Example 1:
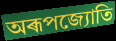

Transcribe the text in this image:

অৰূপজ্যোতি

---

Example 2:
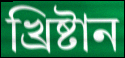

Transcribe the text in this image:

খ্ৰিষ্টান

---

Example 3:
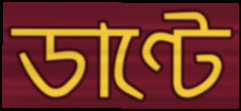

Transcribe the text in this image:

ডাণ্টে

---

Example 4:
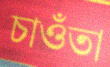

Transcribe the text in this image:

চাওঁতা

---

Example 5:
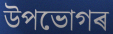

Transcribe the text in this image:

উপভোগৰ